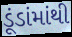
ડૂંડાંમાંથી